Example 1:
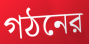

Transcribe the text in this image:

গঠনের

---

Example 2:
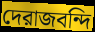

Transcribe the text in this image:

দেরাজবন্দি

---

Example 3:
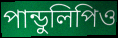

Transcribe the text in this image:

পান্ডুলিপিও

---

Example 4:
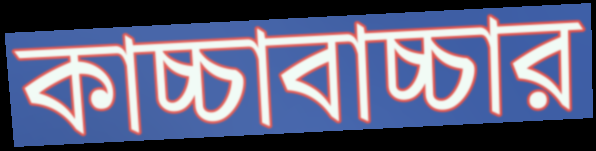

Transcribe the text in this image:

কাচ্চাবাচ্চার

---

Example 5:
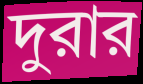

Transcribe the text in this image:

দুরার